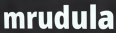
mrudula